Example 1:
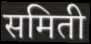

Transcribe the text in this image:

समिती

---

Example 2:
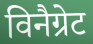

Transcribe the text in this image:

विनैग्रेट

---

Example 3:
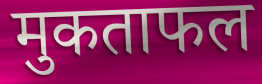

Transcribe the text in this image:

मुकताफल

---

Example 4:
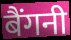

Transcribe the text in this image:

बैंगनी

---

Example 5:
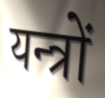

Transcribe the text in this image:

यन्त्रों